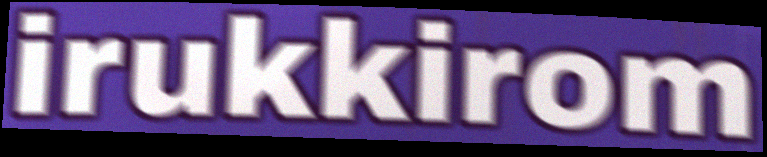
irukkirom